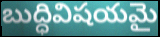
బుద్ధివిషయమై